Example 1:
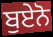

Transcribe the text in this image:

ਬੁਏਨੋ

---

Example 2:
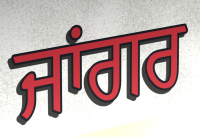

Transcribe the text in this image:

ਜਾਂਗਰ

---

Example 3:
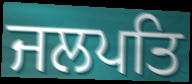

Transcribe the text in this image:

ਜਲਪਤਿ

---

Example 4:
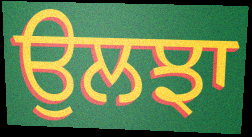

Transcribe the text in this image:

ਉਲਝਾ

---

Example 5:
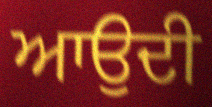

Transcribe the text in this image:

ਆਉਦੀ